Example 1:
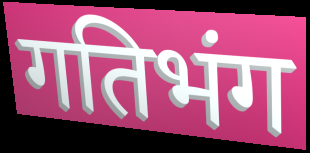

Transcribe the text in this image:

गतिभंग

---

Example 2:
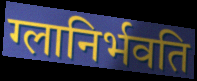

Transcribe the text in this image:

ग्लानिर्भवति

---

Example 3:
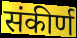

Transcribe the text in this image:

संकीर्ण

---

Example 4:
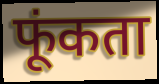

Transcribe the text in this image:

फूंकता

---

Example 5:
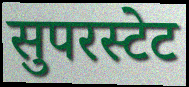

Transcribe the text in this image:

सुपरस्टेट